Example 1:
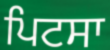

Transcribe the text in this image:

ਪਿਟਸਾ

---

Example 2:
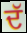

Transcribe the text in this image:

ਦੱ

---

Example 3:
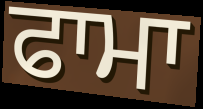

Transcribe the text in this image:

ਫਾਮਾ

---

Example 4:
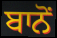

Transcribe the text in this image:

ਬਾਨੋਂ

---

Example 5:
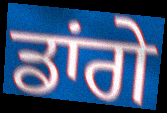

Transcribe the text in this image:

ਡਾਂਗੇ